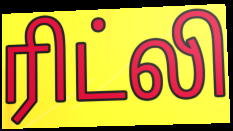
ரிட்லி